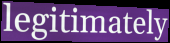
legitimately